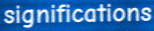
significations